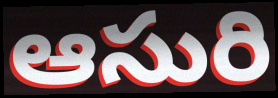
ఆసురి